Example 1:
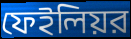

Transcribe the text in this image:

ফেইলিয়র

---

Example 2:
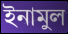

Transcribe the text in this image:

ইনামুল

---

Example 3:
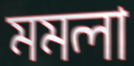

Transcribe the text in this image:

মমলা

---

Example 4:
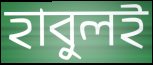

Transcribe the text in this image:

হাবুলই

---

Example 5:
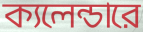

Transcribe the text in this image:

ক্যলেন্ডারে